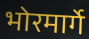
भोरमार्गे